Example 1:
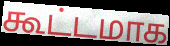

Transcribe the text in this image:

கூட்டமாக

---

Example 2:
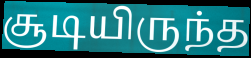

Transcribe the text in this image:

சூடியிருந்த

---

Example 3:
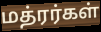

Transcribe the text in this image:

மத்ரர்கள்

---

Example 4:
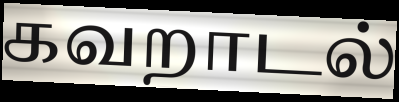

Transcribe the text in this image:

கவறாடல்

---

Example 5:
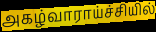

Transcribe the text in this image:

அகழ்வாராய்ச்சியில்